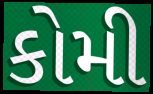
કોમી